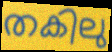
തകിലു